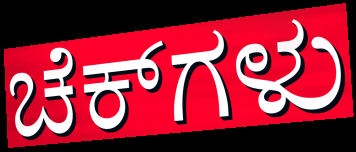
ಚೆಕ್‌ಗಳು